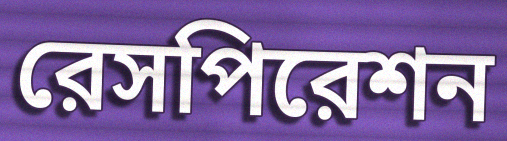
রেসপিরেশন